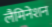
लैमिनेशन